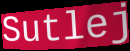
Sutlej